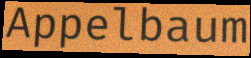
Appelbaum